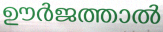
ഊർജത്താൽ